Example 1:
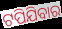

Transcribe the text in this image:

ଟପିଯିବାର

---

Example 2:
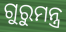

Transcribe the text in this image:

ଗୁରୁମନ୍ତ୍ର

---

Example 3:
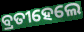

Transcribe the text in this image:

ବ୍ରତୀହେଲେ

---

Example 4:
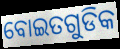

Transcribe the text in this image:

ବୋଇତଗୁଡିକ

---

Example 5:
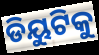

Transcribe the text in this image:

ଡିୟୁଟିକୁ